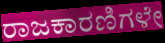
ರಾಜಕಾರಣಿಗಳೇ